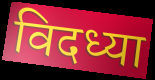
विदध्या